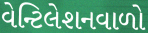
વેન્ટિલેશનવાળો